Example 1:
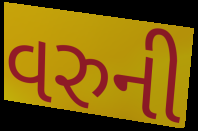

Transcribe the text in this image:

વરુની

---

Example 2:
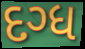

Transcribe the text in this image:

દગ્ધ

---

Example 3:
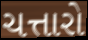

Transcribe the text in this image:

ચત્તારો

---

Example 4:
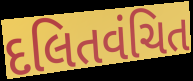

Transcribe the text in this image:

દલિતવંચિત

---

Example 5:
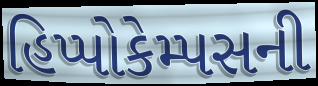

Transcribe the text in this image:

હિપ્પોકેમ્પસની